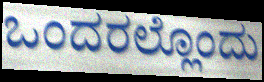
ಒಂದರಲ್ಲೊಂದು